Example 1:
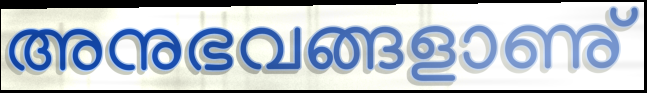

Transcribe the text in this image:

അനുഭവങ്ങളാണു്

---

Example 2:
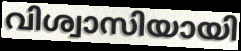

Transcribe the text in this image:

വിശ്വാസിയായി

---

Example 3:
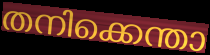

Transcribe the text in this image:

തനിക്കെന്താ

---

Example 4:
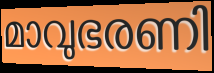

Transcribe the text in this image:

മാവുഭരണി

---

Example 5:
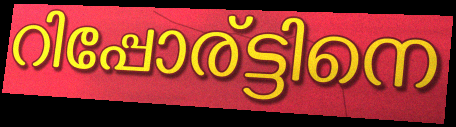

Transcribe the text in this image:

റിപ്പോര്ട്ടിനെ